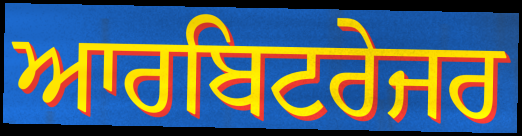
ਆਰਬਿਟਰੇਜਰ